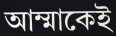
আম্মাকেই